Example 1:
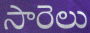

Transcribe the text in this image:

సారెలు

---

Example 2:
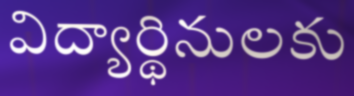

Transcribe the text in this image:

విద్యార్థినులకు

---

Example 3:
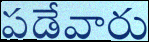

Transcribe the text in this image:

పడేవారు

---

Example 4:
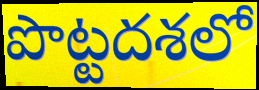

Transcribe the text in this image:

పొట్టదశలో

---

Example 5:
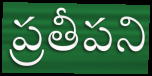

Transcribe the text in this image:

ప్రతీపని